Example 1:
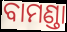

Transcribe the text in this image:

ବାମଣ୍ଡା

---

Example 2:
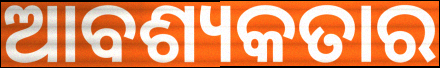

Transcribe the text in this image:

ଆବଶ୍ୟକତାର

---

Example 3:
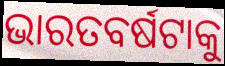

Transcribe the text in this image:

ଭାରତବର୍ଷଟାକୁ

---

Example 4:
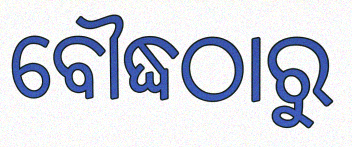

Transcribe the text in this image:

ବୌଦ୍ଧଠାରୁ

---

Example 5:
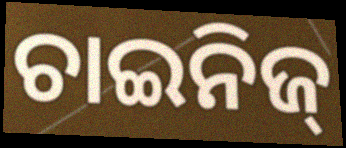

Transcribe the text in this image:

ଚାଇନିଜ୍